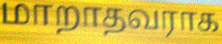
மாறாதவராக